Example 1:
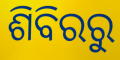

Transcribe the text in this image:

ଶିବିରରୁ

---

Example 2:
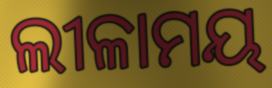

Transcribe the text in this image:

ଲୀଳାମୟ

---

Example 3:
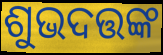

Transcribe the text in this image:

ଶୁଭଦତ୍ତଙ୍କ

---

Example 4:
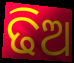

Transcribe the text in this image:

ଢିଅ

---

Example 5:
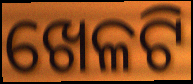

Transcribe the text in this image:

ଖେଳଟି